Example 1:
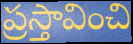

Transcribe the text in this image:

ప్రస్తావించి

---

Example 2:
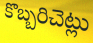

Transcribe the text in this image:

కొబ్బరిచెట్లు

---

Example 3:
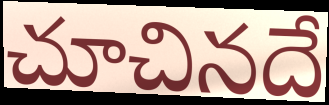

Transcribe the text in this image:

చూచినదే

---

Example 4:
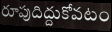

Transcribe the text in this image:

రూపుదిద్దుకోవటం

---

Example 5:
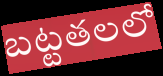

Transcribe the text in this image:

బట్టతలలో